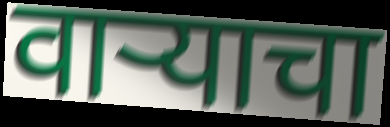
वाऱ्याचा